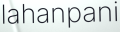
lahanpani